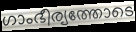
ഗാംഭീര്യത്തോടെ